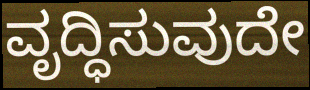
ವೃದ್ಧಿಸುವುದೇ